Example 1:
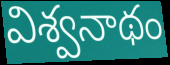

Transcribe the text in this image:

విశ్వనాథం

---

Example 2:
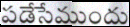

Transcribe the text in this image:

పడేసేముందు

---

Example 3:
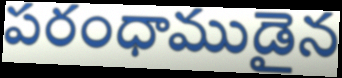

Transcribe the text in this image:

పరంధాముడైన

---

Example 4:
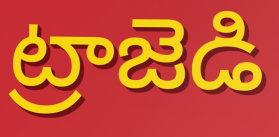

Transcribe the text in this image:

ట్రాజెడి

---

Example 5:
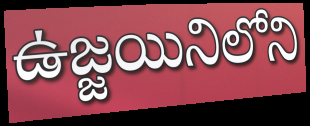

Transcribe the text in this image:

ఉజ్జయినిలోని